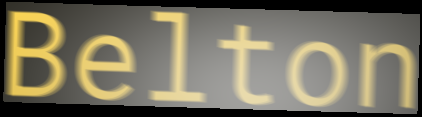
Belton